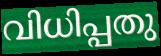
വിധിപ്പതു